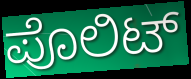
ಪೊಲಿಟ್